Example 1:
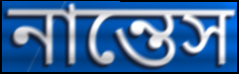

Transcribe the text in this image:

নান্তেস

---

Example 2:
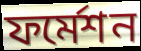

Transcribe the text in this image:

ফর্মেশন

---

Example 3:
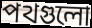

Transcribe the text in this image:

পথগুলো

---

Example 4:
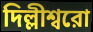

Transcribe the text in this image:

দিল্লীশ্বরো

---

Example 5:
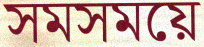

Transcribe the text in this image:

সমসময়ে